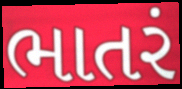
ભાતરં